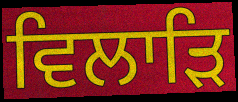
ਵਿਲਾੜਿ